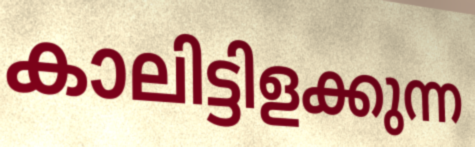
കാലിട്ടിളക്കുന്ന